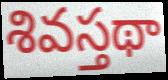
శివస్తథా